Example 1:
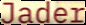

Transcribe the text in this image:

Jader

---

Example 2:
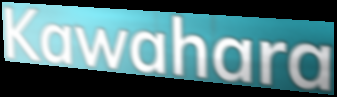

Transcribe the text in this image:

Kawahara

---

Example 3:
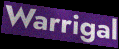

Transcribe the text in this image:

Warrigal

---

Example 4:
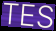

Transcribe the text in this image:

TES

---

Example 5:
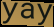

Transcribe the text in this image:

yay